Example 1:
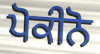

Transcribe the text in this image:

ਪੋਕੀਨੋ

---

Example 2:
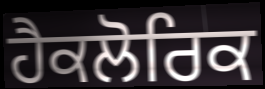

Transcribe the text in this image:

ਹੈਕਲੋਰਿਕ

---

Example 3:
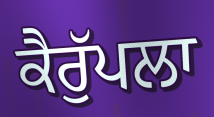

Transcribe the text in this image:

ਕੈਰੁੱਪਲਾ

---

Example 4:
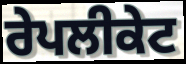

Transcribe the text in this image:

ਰੇਪਲੀਕੇਟ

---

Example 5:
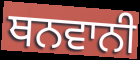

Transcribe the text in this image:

ਥਨਵਾਨੀ